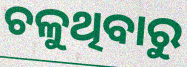
ଚଳୁଥିବାରୁ